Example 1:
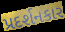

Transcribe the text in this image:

પ્રદર્શનકાર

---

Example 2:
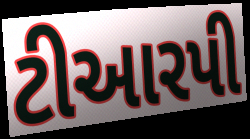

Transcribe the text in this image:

ટીઆરપી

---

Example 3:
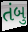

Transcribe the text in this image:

તંબુ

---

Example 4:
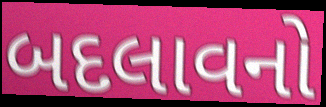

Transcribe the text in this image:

બદલાવનો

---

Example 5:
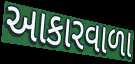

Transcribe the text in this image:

આકારવાળા